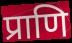
प्राणि